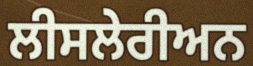
ਲੀਸਲੇਰੀਅਨ